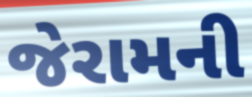
જેરામની